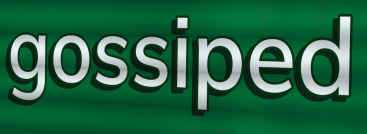
gossiped